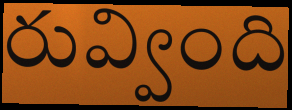
రువ్వింది